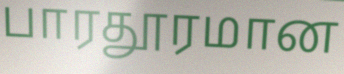
பாரதூரமான